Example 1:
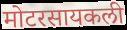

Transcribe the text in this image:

मोटरसायकली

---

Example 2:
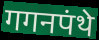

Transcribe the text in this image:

गगनपंथे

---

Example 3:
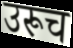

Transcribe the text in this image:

उरूच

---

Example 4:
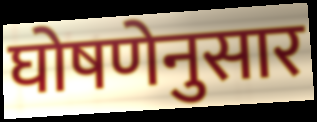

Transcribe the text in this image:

घोषणेनुसार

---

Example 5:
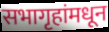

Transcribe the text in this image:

सभागृहांमधून